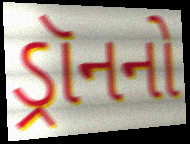
ડ્રૉનનો